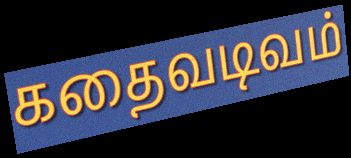
கதைவடிவம்